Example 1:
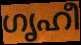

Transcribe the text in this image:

ഗൃഹീ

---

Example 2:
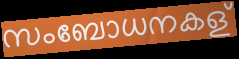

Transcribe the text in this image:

സംബോധനകള്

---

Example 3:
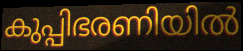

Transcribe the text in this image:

കുപ്പിഭരണിയിൽ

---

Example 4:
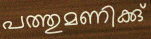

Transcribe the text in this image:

പത്തുമണിക്കു്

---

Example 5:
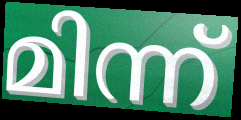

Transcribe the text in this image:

മിന്ന്